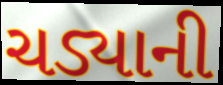
ચડ્યાની